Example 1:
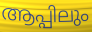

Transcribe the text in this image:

ആപ്പിലും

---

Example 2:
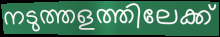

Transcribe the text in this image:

നടുത്തളത്തിലേക്ക്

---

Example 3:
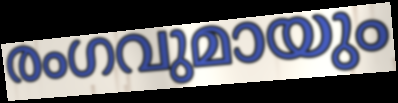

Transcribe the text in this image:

രംഗവുമായും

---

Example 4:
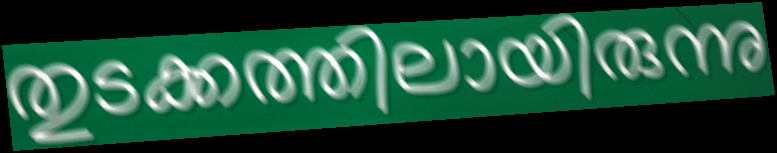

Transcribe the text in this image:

തുടക്കത്തിലായിരുന്നു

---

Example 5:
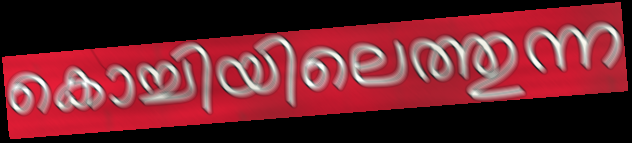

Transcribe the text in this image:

കൊച്ചിയിലെത്തുന്ന